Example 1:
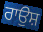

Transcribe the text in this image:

ਰਾਉਸ਼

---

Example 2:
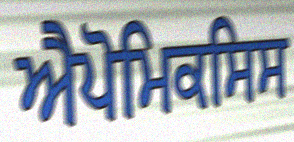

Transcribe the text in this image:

ਐਪੋਮਿਕਸਿਸ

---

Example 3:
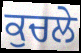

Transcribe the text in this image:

ਕੁਚਲੇ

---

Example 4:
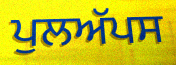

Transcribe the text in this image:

ਪੁਲਅੱਪਸ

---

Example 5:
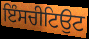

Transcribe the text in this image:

ਇੰਸਚੀਟਿਉਟ